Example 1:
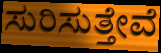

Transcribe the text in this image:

ಸುರಿಸುತ್ತೇವೆ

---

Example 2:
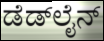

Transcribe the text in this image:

ಡೆಡ್‍ಲೈನ್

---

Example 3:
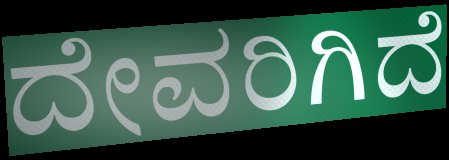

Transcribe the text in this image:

ದೇವರಿಗಿದೆ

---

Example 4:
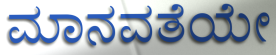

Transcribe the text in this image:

ಮಾನವತೆಯೇ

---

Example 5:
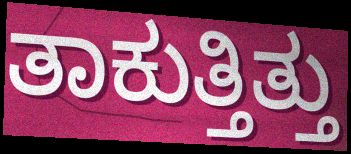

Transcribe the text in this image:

ತಾಕುತ್ತಿತ್ತು